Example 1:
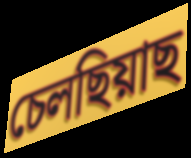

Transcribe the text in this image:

চেলছিয়াছ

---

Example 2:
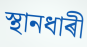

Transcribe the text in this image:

স্থানধাৰী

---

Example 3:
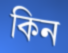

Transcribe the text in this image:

কিন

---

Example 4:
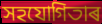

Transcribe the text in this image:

সহযোগিতাৰ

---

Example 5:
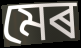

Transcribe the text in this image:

মেৰ